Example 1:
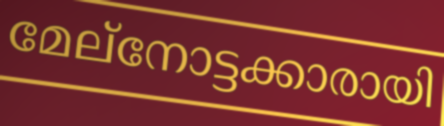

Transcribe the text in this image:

മേല്നോട്ടക്കാരായി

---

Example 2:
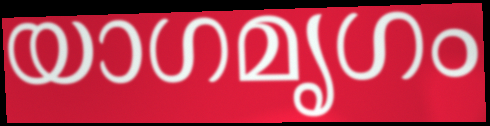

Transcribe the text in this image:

യാഗമൃഗം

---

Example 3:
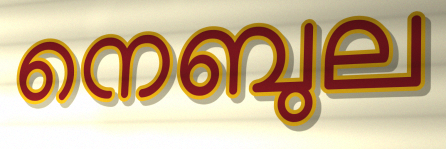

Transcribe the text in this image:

നെബുല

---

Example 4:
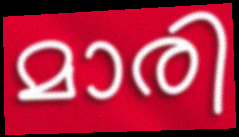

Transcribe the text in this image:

മാരി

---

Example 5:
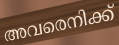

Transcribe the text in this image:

അവരെനിക്ക്